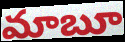
మాబూ